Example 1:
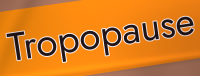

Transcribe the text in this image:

Tropopause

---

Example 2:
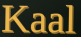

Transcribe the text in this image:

Kaal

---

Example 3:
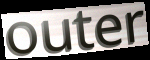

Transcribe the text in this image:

outer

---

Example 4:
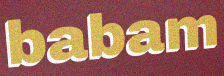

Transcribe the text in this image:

babam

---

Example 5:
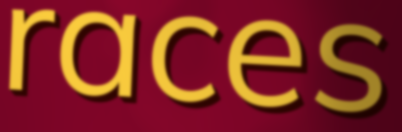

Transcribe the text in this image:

races